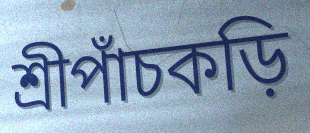
শ্রীপাঁচকড়ি